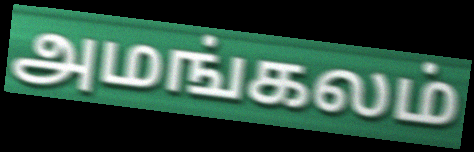
அமங்கலம்